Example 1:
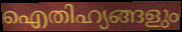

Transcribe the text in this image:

ഐതിഹ്യങ്ങളും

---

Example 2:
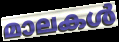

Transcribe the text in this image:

മാലകൾ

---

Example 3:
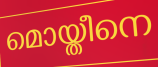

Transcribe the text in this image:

മൊയ്തീനെ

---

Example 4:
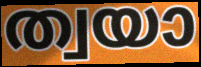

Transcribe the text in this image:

ത്വയാ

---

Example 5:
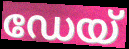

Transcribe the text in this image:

ഡേയ്